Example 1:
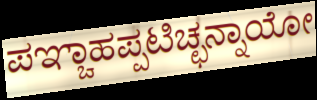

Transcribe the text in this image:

ಪಞ್ಚಾಹಪ್ಪಟಿಚ್ಛನ್ನಾಯೋ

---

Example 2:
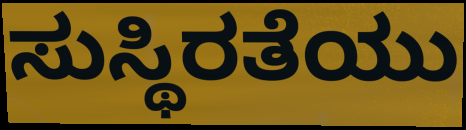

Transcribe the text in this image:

ಸುಸ್ಥಿರತೆಯು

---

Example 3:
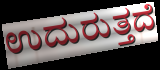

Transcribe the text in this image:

ಉದುರುತ್ತದೆ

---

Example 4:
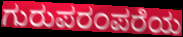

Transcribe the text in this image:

ಗುರುಪರಂಪರೆಯ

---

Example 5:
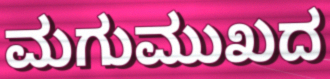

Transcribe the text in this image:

ಮಗುಮುಖದ